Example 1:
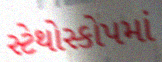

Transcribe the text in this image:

સ્ટેથોસ્કોપમાં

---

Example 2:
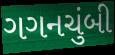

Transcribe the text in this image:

ગગનચુંબી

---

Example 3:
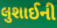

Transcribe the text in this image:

લુશાઈની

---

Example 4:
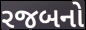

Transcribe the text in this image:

રજબનો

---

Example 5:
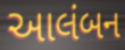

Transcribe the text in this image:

આલંબન